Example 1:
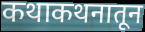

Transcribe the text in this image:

कथाकथनातून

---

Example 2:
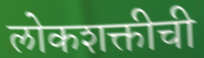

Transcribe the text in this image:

लोकशक्तीची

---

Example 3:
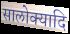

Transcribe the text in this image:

सालोक्यादि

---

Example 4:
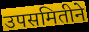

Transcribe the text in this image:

उपसमितीने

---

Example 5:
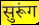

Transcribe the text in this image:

सुरूंग